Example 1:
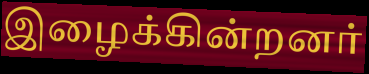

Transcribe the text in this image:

இழைக்கின்றனர்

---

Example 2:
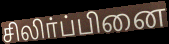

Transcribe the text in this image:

சிலிர்ப்பினை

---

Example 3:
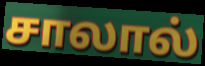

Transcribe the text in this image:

சாலால்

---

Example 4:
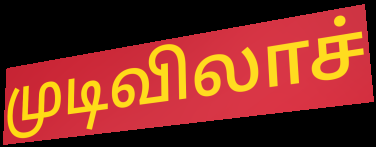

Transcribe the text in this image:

முடிவிலாச்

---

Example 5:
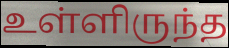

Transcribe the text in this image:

உள்ளிருந்த